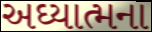
અઘ્યાત્મના